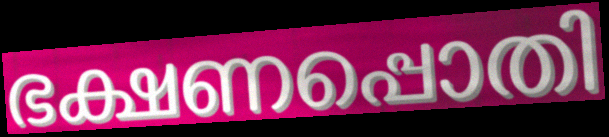
ഭക്ഷണപ്പൊതി